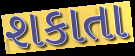
શકાતા